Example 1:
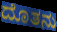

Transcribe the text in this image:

ದೊತನು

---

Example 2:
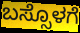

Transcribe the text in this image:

ಬಸ್ಸೊಳಗೆ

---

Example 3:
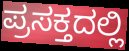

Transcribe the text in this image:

ಪ್ರಸಕ್ತದಲ್ಲಿ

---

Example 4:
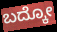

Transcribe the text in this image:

ಬದ್ಕೋ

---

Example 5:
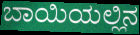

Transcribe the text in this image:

ಬಾಯಿಯಲ್ಲಿನ